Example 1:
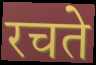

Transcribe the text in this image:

रचते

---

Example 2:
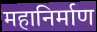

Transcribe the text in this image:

महानिर्माण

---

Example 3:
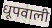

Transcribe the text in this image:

धूपवाली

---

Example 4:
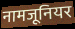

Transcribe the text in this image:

नामजूनियर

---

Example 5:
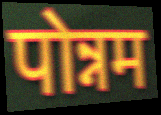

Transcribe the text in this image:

पोन्नम